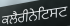
ਕਲੈਰੀਨੇਟਿਸਟ